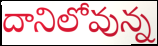
దానిలోవున్న